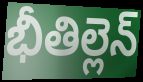
భీతిల్లెన్